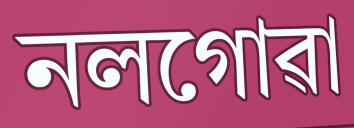
নলগোৱা